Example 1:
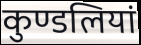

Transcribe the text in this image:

कुण्डलियां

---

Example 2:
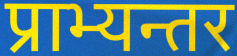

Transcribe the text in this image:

प्राभ्यन्तर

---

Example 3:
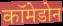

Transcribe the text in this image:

कॉमेडोन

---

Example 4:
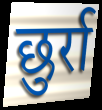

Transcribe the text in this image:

छुर्रा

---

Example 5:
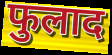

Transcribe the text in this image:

फुलाद